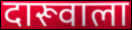
दारूवाला